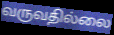
வருவதில்லை